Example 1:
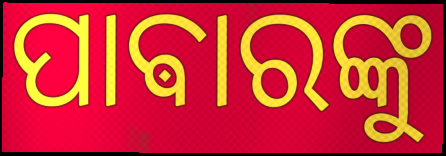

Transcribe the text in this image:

ପାଵାରଙ୍କୁ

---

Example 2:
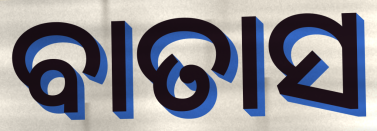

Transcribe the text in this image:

ବାତାସ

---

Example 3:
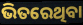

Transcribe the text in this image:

ଭିତରେଥିବା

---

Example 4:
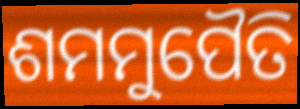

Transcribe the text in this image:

ଶମମୁପୈତି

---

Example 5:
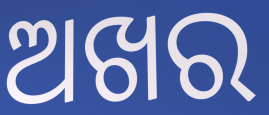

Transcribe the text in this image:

ଅଖର